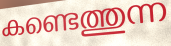
കണ്ടെത്തുന്ന